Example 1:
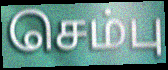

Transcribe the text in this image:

செம்பு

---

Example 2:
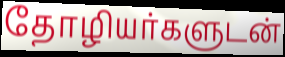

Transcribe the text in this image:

தோழியர்களுடன்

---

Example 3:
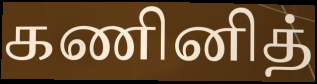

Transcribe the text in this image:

கணினித்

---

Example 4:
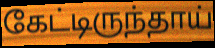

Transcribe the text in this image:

கேட்டிருந்தாய்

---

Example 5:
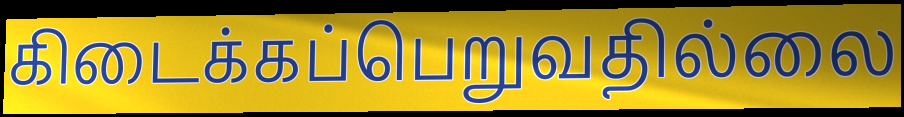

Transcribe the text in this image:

கிடைக்கப்பெறுவதில்லை